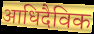
आधिदैविक